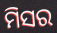
ମିସର